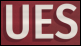
UES